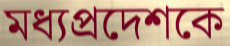
মধ্যপ্রদেশকে